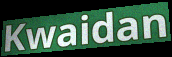
Kwaidan